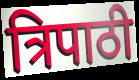
त्रिपाठी